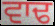
ਵਾਢ